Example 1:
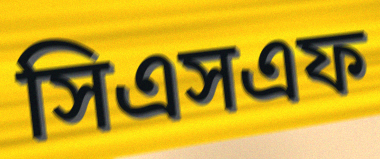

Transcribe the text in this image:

সিএসএফ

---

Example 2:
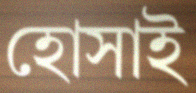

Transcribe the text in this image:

হোসাই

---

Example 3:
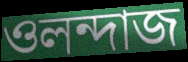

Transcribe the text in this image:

ওলন্দাজ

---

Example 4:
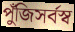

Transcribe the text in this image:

পুঁজিসর্বস্ব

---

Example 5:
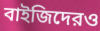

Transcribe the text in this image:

বাইজিদেরও